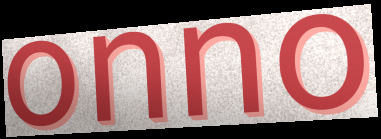
onno